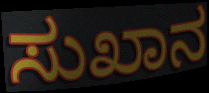
ಸುಖಾನ